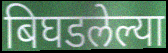
बिघडलेल्या